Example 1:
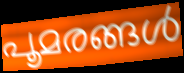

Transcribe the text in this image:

പൂമരങ്ങൾ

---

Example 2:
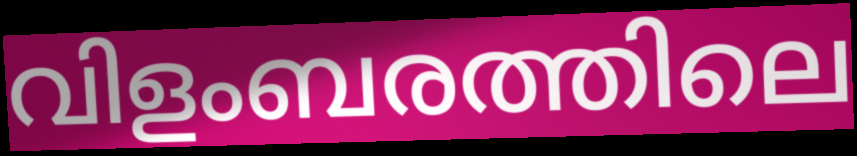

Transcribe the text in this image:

വിളംബരത്തിലെ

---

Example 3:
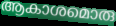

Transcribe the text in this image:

ആകാശമൊരു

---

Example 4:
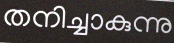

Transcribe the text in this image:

തനിച്ചാകുന്നു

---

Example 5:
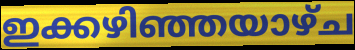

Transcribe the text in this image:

ഇക്കഴിഞ്ഞയാഴ്ച